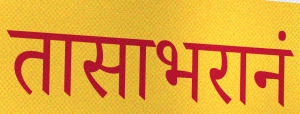
तासाभरानं